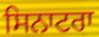
ਸਿਨਾਟਰਾ